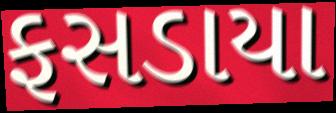
ફસડાયા